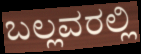
ಬಲ್ಲವರಲ್ಲಿ